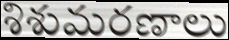
శిశుమరణాలు